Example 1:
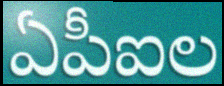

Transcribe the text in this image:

ఏపీఐల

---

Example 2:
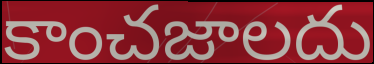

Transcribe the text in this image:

కాంచజాలదు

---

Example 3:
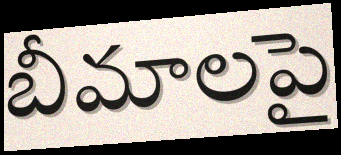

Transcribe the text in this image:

బీమాలపై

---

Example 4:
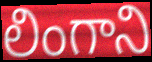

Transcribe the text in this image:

లింగాని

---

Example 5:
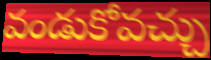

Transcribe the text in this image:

వండుకోవచ్చు